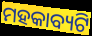
ମହକାବ୍ୟଟି